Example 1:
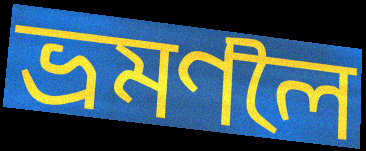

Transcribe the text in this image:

ভ্ৰমণলৈ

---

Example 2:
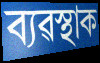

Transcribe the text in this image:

ব্যৱস্থাক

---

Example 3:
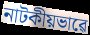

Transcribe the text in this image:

নাটকীয়ভাৱে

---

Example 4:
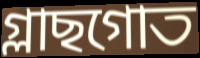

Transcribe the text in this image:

গ্লাছগোত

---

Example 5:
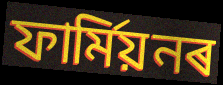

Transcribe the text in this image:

ফাৰ্মিয়নৰ